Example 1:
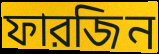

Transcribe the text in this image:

ফারজিন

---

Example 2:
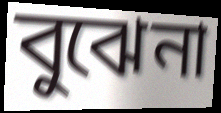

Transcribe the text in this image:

বুঝেনা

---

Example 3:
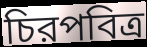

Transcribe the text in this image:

চিরপবিত্র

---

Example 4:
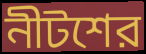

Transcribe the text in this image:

নীটশের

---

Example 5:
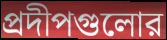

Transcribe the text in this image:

প্রদীপগুলোর